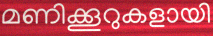
മണിക്കൂറുകളായി